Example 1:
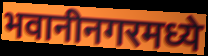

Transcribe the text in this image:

भवानीनगरमध्ये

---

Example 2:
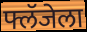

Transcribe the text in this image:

फ्लॅजेला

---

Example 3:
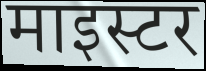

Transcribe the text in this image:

माइस्टर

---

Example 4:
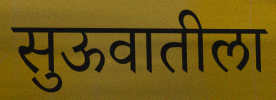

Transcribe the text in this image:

सुऊवातीला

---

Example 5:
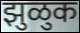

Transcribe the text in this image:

झुळुक